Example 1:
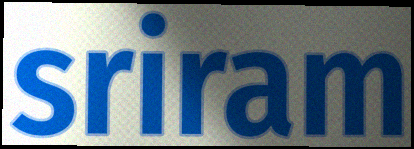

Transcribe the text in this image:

sriram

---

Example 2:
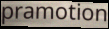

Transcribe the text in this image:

pramotion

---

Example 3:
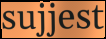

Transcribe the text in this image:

sujjest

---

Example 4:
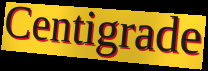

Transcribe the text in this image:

Centigrade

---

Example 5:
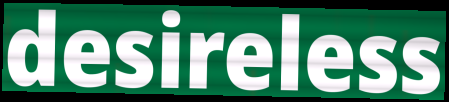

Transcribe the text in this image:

desireless